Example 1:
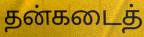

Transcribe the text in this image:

தன்கடைத்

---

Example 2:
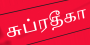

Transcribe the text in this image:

சுப்ரதீகா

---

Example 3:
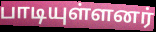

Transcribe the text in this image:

பாடியுள்ளனர்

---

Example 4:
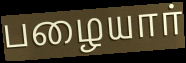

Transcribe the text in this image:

பழையார்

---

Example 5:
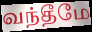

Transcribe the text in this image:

வந்தீமே